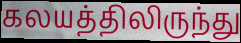
கலயத்திலிருந்து